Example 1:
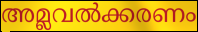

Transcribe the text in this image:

അമ്ലവൽക്കരണം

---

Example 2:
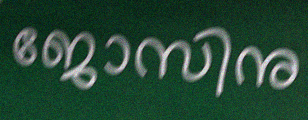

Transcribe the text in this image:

ജോസിനു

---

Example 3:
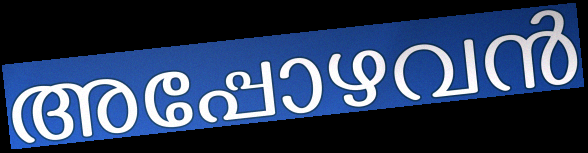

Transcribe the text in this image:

അപ്പോഴവൻ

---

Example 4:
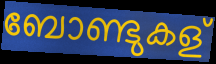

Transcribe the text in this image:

ബോണ്ടുകള്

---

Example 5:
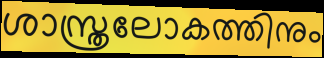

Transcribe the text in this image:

ശാസ്ത്രലോകത്തിനും